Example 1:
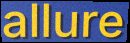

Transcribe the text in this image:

allure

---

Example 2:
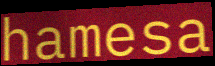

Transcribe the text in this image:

hamesa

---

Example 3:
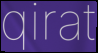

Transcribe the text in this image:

qirat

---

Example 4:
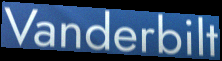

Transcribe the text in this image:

Vanderbilt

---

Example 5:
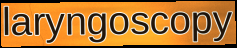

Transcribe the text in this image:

laryngoscopy